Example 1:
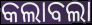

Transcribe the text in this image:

କଲାବଲା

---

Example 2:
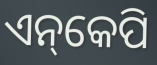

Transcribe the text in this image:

ଏନ୍‌କେପି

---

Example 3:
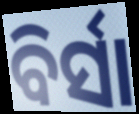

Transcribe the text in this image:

ବିର୍ସା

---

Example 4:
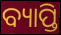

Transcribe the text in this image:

ବ୍ୟାପ୍ତି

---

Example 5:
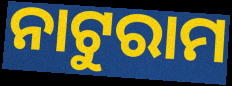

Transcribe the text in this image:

ନାଟୁରାମ